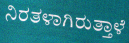
ನಿರತಳಾಗಿರುತ್ತಾಳೆ